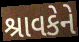
શ્રાવકેને